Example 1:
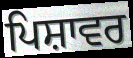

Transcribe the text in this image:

ਪਿਸ਼ਾਵਰ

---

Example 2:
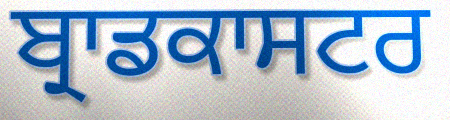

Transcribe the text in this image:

ਬ੍ਰਾਡਕਾਸਟਰ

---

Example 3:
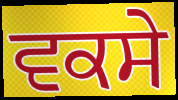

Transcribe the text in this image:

ਵਕਸੇ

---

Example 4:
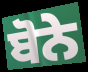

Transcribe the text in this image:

ਬੋਨੇ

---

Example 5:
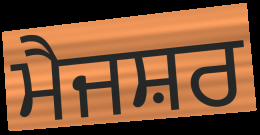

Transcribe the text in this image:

ਮੈਜਸ਼ਰ